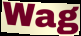
Wag